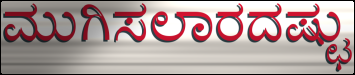
ಮುಗಿಸಲಾರದಷ್ಟು